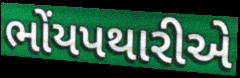
ભોંયપથારીએ